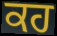
ਕਹ